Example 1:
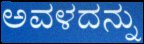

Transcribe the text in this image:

ಅವಳದನ್ನು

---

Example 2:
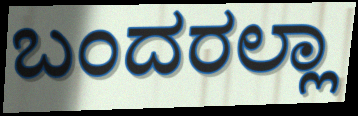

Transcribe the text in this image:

ಬಂದರಲ್ಲಾ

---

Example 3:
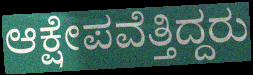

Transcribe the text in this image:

ಆಕ್ಷೇಪವೆತ್ತಿದ್ದರು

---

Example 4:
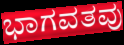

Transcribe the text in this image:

ಭಾಗವತವು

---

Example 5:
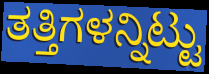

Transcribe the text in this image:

ತತ್ತಿಗಳನ್ನಿಟ್ಟು